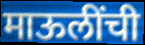
माऊलींची